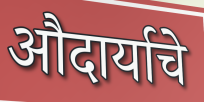
औदार्याचे